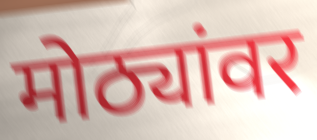
मोठ्यांवर